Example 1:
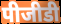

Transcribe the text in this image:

पीजीडी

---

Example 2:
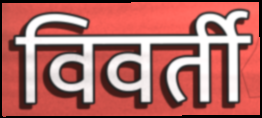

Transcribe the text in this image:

विवर्ती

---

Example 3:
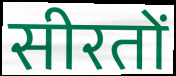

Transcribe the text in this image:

सीरतों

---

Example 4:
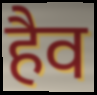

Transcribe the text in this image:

हैव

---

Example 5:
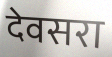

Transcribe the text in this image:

देवसरा